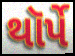
થૉર્પે